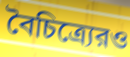
বৈচিত্র্যেরও